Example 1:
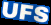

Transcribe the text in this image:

UFS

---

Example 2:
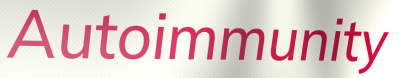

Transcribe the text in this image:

Autoimmunity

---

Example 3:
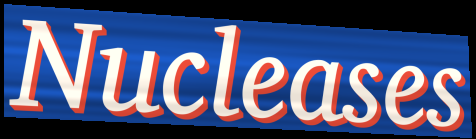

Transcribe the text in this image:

Nucleases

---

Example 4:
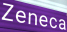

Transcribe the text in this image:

Zeneca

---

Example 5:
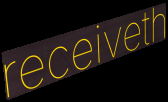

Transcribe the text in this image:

receiveth